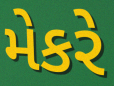
મેકરે